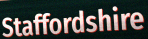
Staffordshire